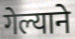
गेल्याने